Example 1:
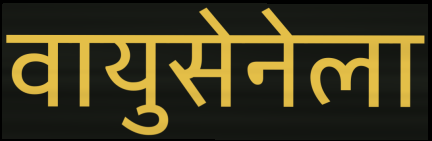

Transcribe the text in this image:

वायुसेनेला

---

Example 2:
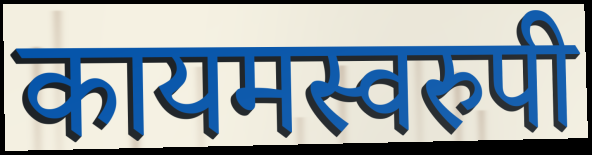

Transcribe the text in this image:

कायमस्वरुपी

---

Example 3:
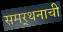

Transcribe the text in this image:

समर्थनाची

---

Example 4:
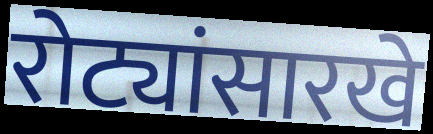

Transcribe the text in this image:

रोट्यांसारखे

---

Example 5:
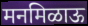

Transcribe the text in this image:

मनमिळाऊ